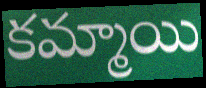
కమ్మాయి